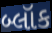
બ્લૉક